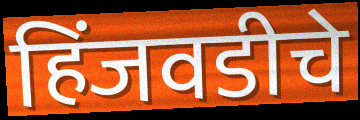
हिंजवडीचे